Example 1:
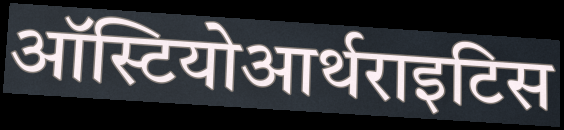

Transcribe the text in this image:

ऑस्टियोआर्थराइटिस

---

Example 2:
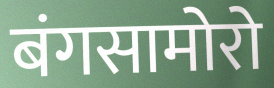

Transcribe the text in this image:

बंगसामोरो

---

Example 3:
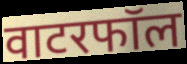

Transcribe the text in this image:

वाटरफॉल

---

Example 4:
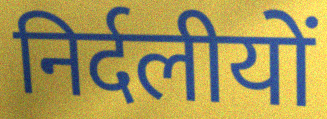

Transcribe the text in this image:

निर्दलीयों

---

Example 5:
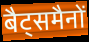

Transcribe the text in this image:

बैट्समैनों